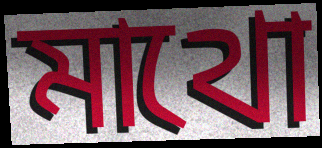
মাথো